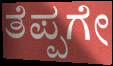
ತೆಪ್ಪಗೇ